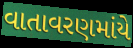
વાતાવરણમાંયે